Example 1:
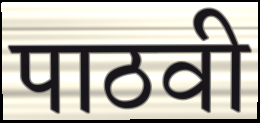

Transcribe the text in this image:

पाठवी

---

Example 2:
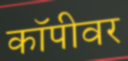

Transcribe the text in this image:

कॉपीवर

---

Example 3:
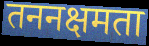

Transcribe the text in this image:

तननक्षमता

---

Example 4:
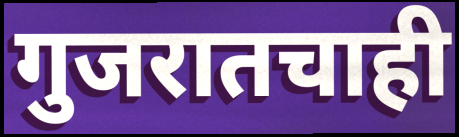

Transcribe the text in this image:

गुजरातचाही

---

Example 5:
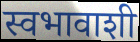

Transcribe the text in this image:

स्वभावाशी